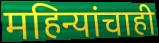
महिन्यांचाही